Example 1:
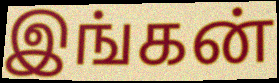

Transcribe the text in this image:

இங்கன்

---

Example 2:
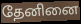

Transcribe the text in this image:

தேனினை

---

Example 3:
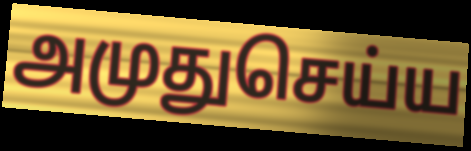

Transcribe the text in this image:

அமுதுசெய்ய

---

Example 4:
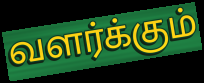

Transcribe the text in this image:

வளர்க்கும்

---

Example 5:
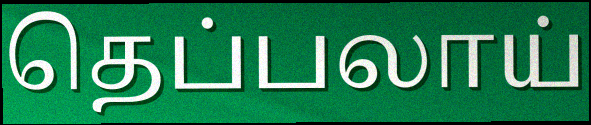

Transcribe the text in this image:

தெப்பலாய்